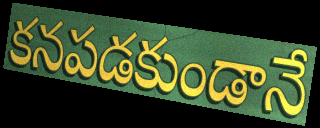
కనపడకుండానే